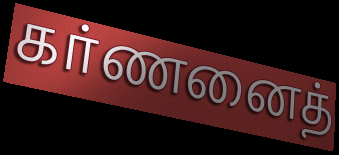
கர்ணனைத்